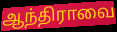
ஆந்திராவை